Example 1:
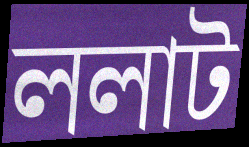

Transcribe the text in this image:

ললাট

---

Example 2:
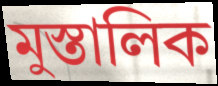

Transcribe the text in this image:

মুস্তালিক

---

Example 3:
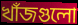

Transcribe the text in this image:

খাঁজগুলো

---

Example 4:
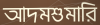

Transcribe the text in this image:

আদমশুমারি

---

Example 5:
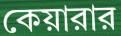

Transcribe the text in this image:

কেয়ারার